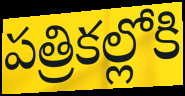
పత్రికల్లోకి